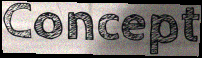
Concept